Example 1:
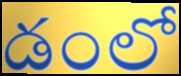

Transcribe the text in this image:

డంలో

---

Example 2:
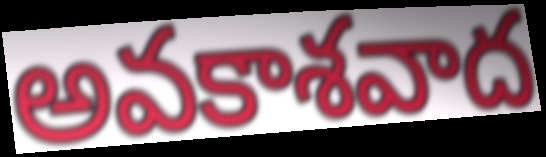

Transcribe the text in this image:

అవకాశవాద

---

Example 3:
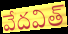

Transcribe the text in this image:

వేదవిత్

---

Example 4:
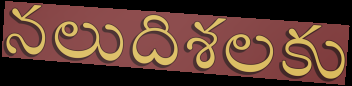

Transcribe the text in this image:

నలుదిశలకు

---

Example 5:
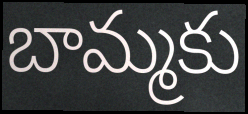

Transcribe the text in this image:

బామ్మకు